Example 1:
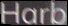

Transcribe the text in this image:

Harb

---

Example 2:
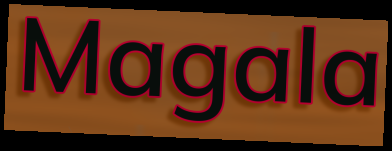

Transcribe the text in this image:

Magala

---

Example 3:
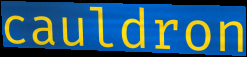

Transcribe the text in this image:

cauldron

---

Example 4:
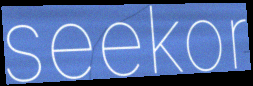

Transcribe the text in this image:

seekor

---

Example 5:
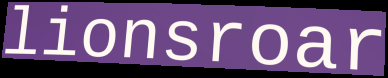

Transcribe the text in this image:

lionsroar